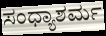
ಸಂಧ್ಯಾಶರ್ಮ